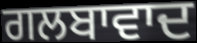
ਗਲਬਾਵਾਦ